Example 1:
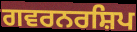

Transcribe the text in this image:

ਗਵਰਨਰਸ਼ਿਪ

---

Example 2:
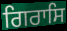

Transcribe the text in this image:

ਗਿਰਾਸਿ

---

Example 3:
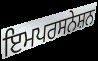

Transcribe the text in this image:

ਇਮਪਰਸਨੇਸ਼ਨ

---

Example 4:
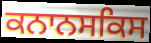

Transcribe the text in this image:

ਕਨਾਨਸਕਿਸ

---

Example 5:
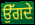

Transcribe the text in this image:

ਉੱਗਦੇ